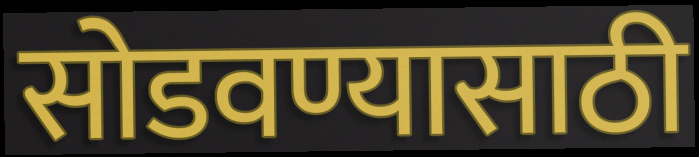
सोडवण्यासाठी